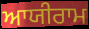
ਆਯੀਰਾਮ